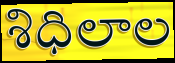
శిధిలాల